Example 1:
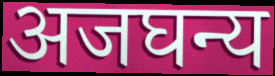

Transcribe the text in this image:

अजघन्य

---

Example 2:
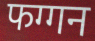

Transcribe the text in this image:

फग्गन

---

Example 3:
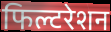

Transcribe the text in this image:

फिल्टरेशन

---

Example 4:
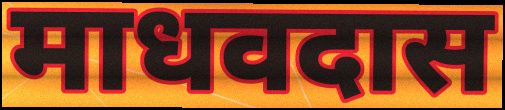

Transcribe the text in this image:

माधवदास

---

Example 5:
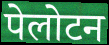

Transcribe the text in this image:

पेलोटन